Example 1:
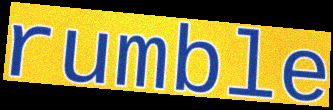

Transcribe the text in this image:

rumble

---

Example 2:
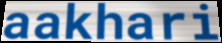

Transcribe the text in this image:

aakhari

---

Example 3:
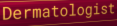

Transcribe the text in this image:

Dermatologist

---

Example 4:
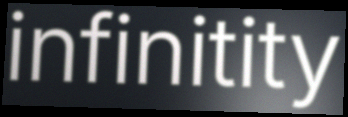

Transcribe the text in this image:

infinitity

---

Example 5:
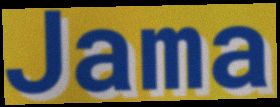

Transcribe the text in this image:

Jama